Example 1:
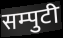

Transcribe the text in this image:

सम्पुटी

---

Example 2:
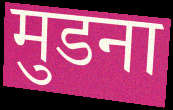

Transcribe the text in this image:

मुडना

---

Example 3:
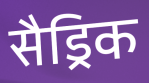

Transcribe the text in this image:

सैड्रिक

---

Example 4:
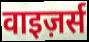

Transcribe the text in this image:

वाइज़र्स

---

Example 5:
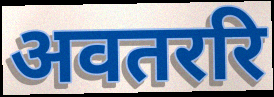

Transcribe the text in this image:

अवतररि